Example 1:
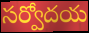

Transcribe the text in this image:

సర్వోదయ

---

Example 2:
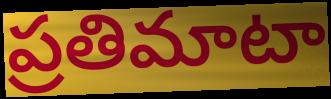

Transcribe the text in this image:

ప్రతిమాటా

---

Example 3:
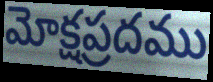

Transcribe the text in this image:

మోక్షప్రదము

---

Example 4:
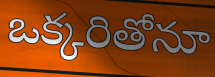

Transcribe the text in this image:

ఒక్కరితోనూ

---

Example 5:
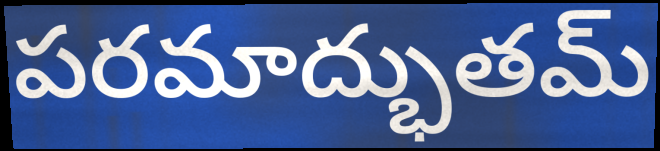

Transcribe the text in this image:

పరమాద్భుతమ్